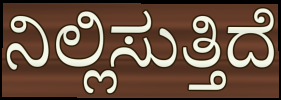
ನಿಲ್ಲಿಸುತ್ತಿದೆ